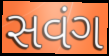
સવંગ